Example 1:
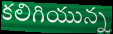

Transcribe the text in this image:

కలిగియున్న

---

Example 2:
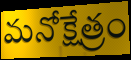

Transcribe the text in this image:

మనోక్షేత్రం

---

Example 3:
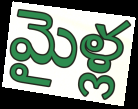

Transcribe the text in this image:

మైళ్ల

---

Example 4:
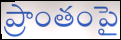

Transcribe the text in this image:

ప్రాంతంపై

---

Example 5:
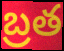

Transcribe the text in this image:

బ్రత